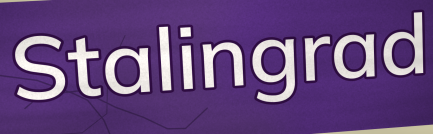
Stalingrad